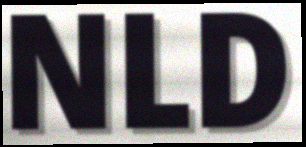
NLD